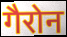
गैरोन